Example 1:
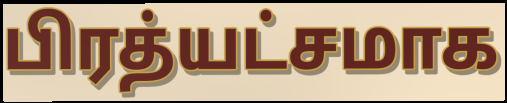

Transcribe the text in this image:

பிரத்யட்சமாக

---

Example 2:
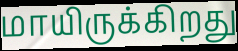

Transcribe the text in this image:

மாயிருக்கிறது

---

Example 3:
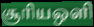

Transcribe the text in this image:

சூரியஒளி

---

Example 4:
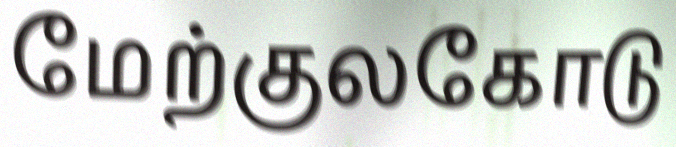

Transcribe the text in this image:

மேற்குலகோடு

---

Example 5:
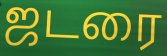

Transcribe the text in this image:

ஜடரை